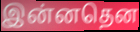
இன்னதென